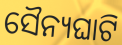
ସୈନ୍ୟଘାଟି